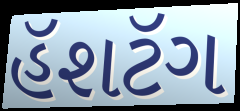
હૅશટૅગ